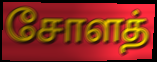
சோளத்